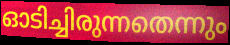
ഓടിച്ചിരുന്നതെന്നും